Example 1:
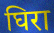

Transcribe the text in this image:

घिरा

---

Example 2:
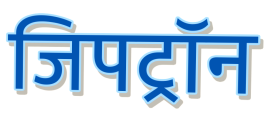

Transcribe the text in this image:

जिपट्रॉन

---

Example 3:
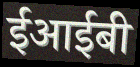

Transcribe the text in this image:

ईआईबी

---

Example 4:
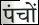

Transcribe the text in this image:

पंचों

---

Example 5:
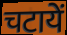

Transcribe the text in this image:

चटायें